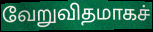
வேறுவிதமாகச்